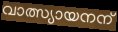
വാത്സ്യായനന്